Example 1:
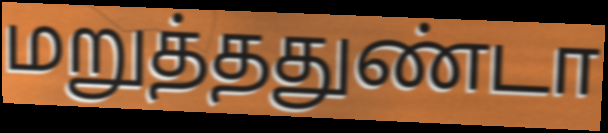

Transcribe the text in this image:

மறுத்ததுண்டா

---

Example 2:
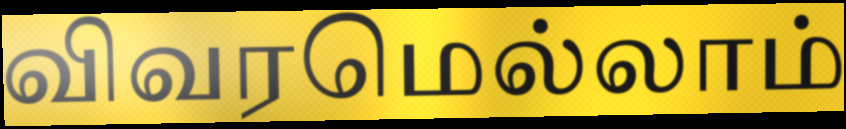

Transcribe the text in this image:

விவரமெல்லாம்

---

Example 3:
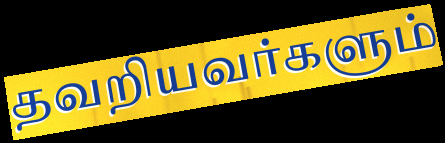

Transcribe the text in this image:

தவறியவர்களும்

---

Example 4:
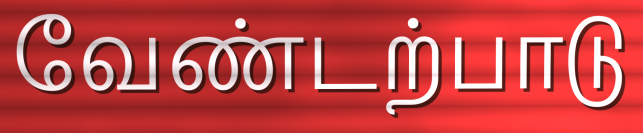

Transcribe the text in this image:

வேண்டற்பாடு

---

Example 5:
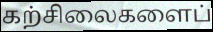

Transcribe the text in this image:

கற்சிலைகளைப்